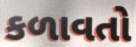
કળાવતો